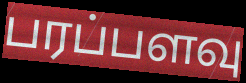
பரப்பளவு